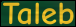
Taleb